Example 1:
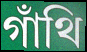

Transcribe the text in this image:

গাঁথি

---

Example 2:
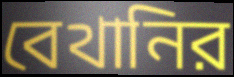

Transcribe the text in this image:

বেথানির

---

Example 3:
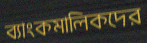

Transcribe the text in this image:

ব্যাংকমালিকদের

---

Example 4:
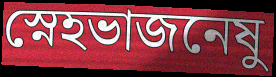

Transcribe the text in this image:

স্নেহভাজনেষু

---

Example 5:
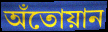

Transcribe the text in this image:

অঁতোয়ান